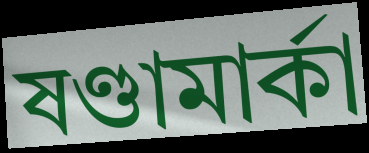
ষণ্ডামার্কা